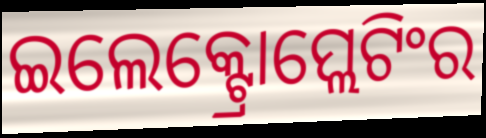
ଇଲେକ୍ଟ୍ରୋପ୍ଲେଟିଂର